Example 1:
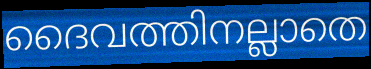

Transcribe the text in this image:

ദൈവത്തിനല്ലാതെ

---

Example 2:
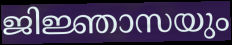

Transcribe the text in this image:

ജിജ്ഞാസയും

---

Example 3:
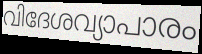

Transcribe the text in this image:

വിദേശവ്യാപാരം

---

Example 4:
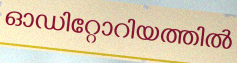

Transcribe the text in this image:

ഓഡിറ്റോറിയത്തിൽ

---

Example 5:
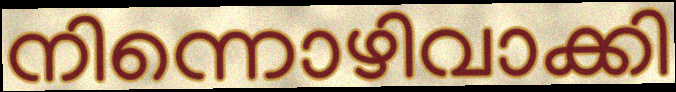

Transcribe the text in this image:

നിന്നൊഴിവാക്കി